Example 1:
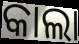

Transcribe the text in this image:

କାଲା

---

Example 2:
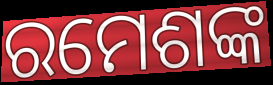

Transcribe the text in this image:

ରମେଶଙ୍କ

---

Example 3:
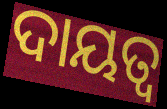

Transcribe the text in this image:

ଦାୟତ୍ବ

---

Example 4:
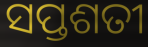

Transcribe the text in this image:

ସପ୍ତଶତୀ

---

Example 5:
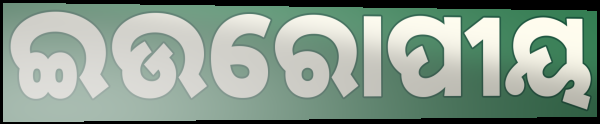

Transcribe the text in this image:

ଇଉରୋପୀୟ